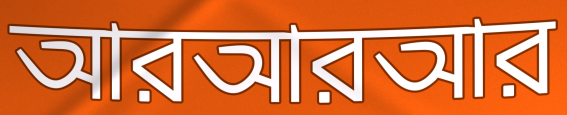
আরআরআর